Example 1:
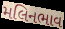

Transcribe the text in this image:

મલિનભાવ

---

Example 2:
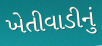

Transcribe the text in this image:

ખેતીવાડીનું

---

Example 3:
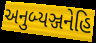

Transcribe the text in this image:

અનુબ્યઞ્જનેહિ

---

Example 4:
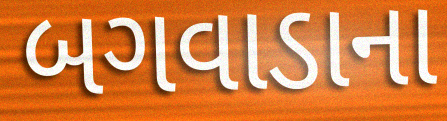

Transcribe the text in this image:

બગવાડાના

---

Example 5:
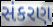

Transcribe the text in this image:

સંકરણ